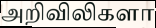
அறிவிலிகளா